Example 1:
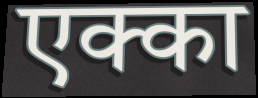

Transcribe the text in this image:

एक्का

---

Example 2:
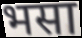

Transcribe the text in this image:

भसा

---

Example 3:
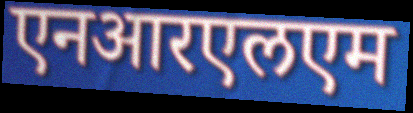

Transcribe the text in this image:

एनआरएलएम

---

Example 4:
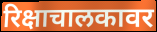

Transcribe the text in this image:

रिक्षाचालकावर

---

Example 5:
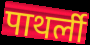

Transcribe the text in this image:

पाथर्ली